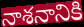
నాశనానికి